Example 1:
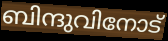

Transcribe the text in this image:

ബിന്ദുവിനോട്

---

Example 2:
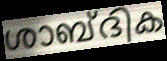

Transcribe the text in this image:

ശാബ്ദിക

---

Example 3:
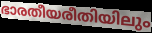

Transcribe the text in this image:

ഭാരതീയരീതിയിലും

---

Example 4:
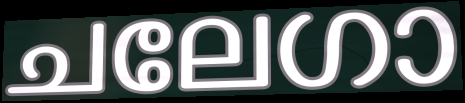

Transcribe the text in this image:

ചലേഗാ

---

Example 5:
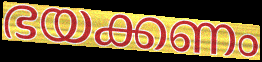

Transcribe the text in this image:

ഭയക്കണം